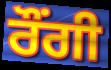
ਰੌਂਗੀ